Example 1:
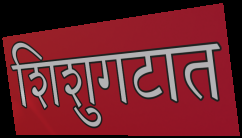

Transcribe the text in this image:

शिशुगटात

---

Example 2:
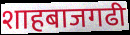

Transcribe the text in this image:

शाहबाजगढी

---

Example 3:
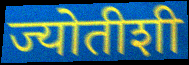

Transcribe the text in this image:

ज्योतीशी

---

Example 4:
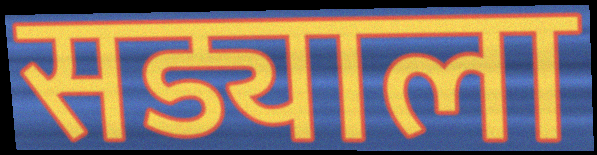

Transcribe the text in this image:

सड्याला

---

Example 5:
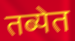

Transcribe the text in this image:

तब्येत